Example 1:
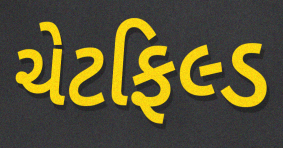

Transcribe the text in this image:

ચેટફિલ્ડ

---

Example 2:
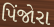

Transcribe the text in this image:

પિંજોરા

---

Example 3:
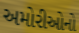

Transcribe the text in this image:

અમોરીઓનો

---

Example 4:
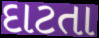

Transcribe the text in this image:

દાટતા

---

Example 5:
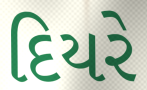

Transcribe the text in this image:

દિયરે